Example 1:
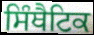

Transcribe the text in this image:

ਸਿੰਥੈਟਿਕ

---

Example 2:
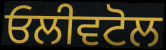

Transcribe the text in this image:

ਓਲੀਵਟੋਲ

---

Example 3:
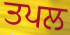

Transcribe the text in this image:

ਤਪਲ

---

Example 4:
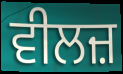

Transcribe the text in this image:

ਵੀਲਜ਼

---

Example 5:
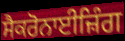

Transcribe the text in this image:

ਸੈਕਰੋਨਾਈਜ਼ਿੰਗ